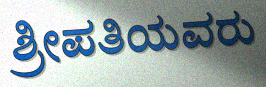
ಶ್ರೀಪತಿಯವರು